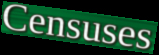
Censuses